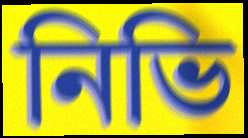
নিভি